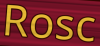
Rosc